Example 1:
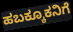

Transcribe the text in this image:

ಹಬಕ್ಕೂಕನಿಗೆ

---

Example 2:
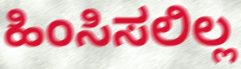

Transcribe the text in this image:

ಹಿಂಸಿಸಲಿಲ್ಲ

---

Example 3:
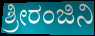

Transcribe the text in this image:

ಶ್ರೀರಂಜಿನಿ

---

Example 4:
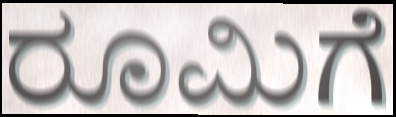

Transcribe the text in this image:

ರೂಮಿಗೆ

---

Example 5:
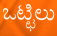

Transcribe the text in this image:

ಒಟ್ಟಿಲು